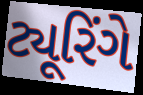
ટ્યૂરિંગે